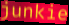
junkie